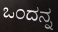
ಒಂದನ್ನ